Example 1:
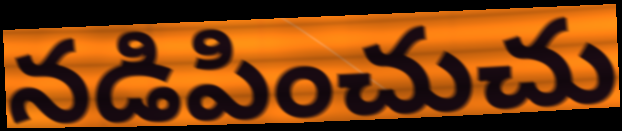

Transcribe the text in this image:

నడిపించుచు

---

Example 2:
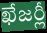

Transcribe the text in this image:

ఖేజర్లీ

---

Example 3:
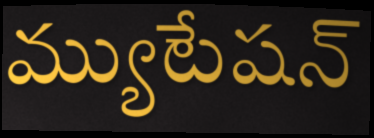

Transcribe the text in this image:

మ్యుటేషన్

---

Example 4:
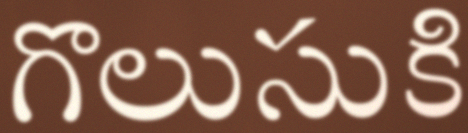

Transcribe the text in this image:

గొలుసుకి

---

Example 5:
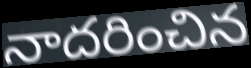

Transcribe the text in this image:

నాదరించిన